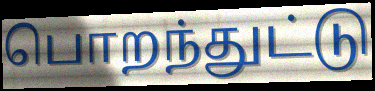
பொறந்துட்டு